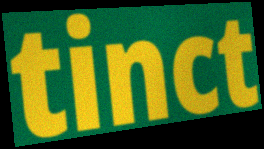
tinct